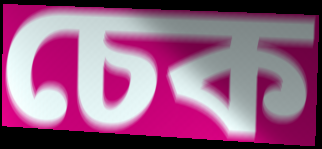
চেক